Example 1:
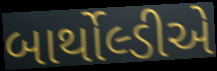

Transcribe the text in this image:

બાર્થોલ્ડીએ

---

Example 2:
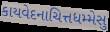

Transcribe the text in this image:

કાયવેદનાચિત્તધમ્મેસુ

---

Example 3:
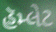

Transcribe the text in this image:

હૅમ્લેટ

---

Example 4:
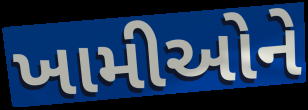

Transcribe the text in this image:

ખામીઓને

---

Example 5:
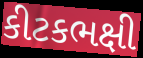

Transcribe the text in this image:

કીટકભક્ષી